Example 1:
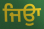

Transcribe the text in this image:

ਜਿਉਾ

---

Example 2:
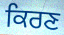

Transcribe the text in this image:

ਕਿਰਣ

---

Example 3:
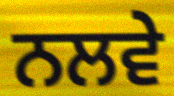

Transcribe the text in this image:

ਨਲਵੇ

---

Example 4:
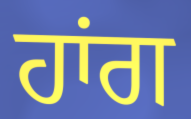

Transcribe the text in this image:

ਹਾਂਗ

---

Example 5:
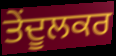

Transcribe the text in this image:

ਤੇਂਦੂਲਕਰ